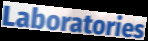
Laboratories